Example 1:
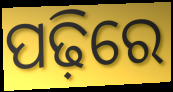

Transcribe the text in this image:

ପଢ଼ିରେ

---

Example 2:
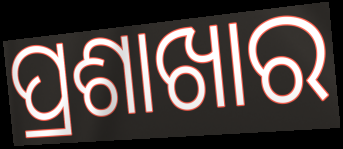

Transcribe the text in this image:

ପ୍ରଶାଖାର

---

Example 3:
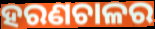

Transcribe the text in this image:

ହରଣଚାଳର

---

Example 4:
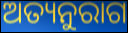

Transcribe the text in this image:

ଅତ୍ୟନୁରାଗ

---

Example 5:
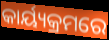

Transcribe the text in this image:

କାର୍ୟ୍ୟକ୍ରମରେ